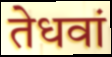
तेधवां